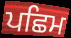
ਪਛਿਮ